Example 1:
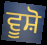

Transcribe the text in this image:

ਵੂਸ਼ੋ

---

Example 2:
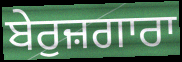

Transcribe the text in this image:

ਬੇਰੁਜ਼ਗਾਰਾ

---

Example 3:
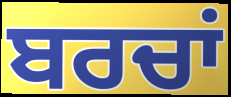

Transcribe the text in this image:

ਬਰਚਾਂ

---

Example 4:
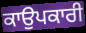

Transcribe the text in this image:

ਕਾਉਪਕਾਰੀ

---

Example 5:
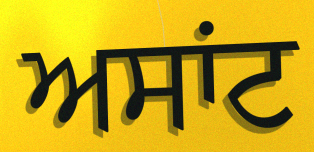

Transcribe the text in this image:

ਅਸਾਂਟ